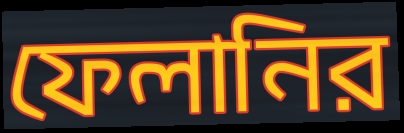
ফেলানির